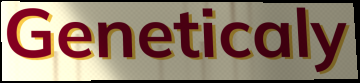
Geneticaly